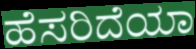
ಹೆಸರಿದೆಯಾ